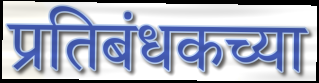
प्रतिबंधकच्या